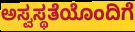
ಅಸ್ವಸ್ಥತೆಯೊಂದಿಗೆ